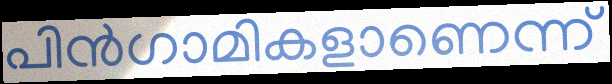
പിൻഗാമികളാണെന്ന്